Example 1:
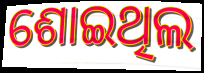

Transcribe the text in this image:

ଶୋଇଥିଲ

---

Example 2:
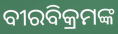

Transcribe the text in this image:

ବୀରବିକ୍ରମଙ୍କ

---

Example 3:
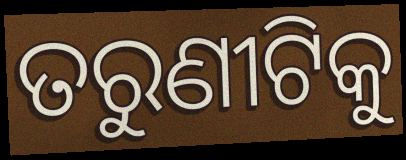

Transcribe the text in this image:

ତରୁଣୀଟିକୁ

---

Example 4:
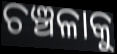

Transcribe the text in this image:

ଚଞ୍ଚଳାକୁ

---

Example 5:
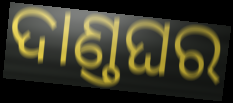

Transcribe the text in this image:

ଦାଣ୍ଡଘର